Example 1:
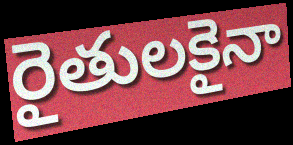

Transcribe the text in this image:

రైతులకైనా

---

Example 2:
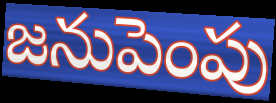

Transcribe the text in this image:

జనుపెంపు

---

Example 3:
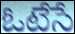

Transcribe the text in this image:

ఓటేసే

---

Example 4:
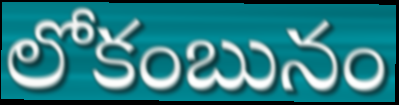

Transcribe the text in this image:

లోకంబునం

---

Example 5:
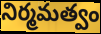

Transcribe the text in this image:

నిర్మమత్వం